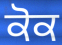
ਕੋਕ